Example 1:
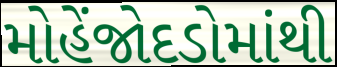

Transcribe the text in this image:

મોહેંજોદડોમાંથી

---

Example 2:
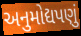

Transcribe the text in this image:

અનુમોદ્યપણું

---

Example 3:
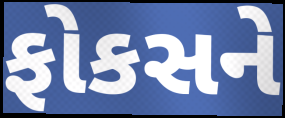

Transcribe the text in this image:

ફોકસને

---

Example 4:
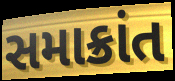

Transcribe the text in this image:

સમાક્રાંત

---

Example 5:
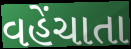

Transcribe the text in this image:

વહેંચાતા